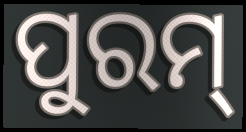
ପୁରମ୍